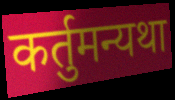
कर्तुमन्यथा